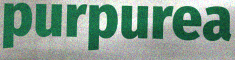
purpurea